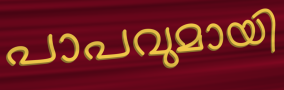
പാപവുമായി